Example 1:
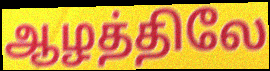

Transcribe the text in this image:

ஆழத்திலே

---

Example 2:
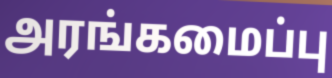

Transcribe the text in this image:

அரங்கமைப்பு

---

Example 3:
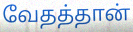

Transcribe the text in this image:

வேதத்தான்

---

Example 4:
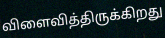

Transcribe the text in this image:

விளைவித்திருக்கிறது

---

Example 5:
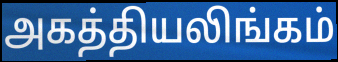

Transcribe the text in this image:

அகத்தியலிங்கம்